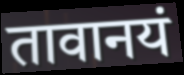
तावानयं